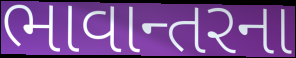
ભાવાન્તરના